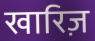
खारिज़